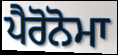
ਪੈਰੋਨੋਮਾ